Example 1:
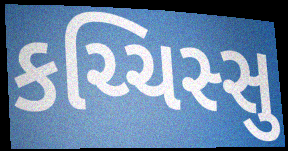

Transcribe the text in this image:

કચ્ચિસ્સુ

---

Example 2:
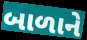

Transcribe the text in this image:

બાળાને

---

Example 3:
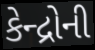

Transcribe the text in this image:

કેન્દ્રોની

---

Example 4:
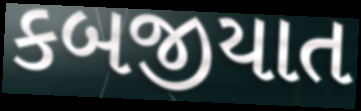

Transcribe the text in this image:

કબજીયાત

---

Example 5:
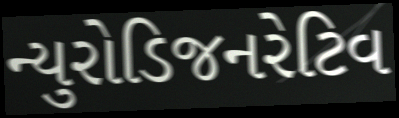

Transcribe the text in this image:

ન્યુરોડિજનરેટિવ